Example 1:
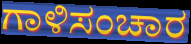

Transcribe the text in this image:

ಗಾಳಿಸಂಚಾರ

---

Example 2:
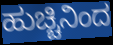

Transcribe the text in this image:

ಹುಚ್ಚಿನಿಂದ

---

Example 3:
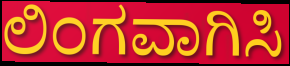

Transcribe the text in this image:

ಲಿಂಗವಾಗಿಸಿ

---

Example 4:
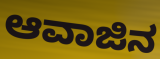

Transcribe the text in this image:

ಆವಾಜಿನ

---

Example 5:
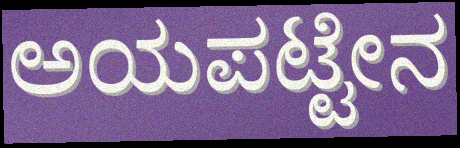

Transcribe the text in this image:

ಅಯಪಟ್ಟೇನ